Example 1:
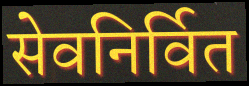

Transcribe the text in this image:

सेवनिर्वित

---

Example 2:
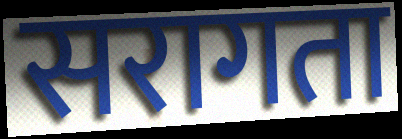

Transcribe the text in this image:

सरागता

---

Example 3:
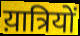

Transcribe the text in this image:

य़ात्रियों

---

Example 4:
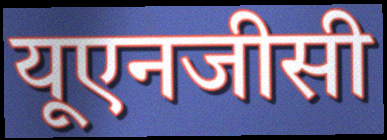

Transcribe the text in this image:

यूएनजीसी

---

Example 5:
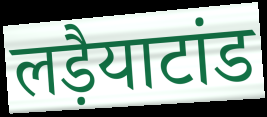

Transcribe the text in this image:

लड़ैयाटांड